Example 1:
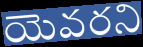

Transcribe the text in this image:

యెవరని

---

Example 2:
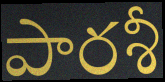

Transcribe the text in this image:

పారశీ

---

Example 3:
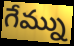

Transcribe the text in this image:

గేమ్ను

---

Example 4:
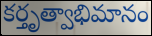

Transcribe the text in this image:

కర్తృత్వాభిమానం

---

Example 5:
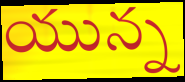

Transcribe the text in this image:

యున్న